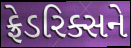
ફ્રેડરિક્સને